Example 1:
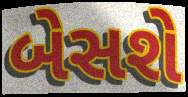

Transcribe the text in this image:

બેસશે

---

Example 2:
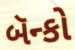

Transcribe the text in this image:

બૅન્કો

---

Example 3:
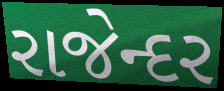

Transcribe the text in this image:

રાજેન્દર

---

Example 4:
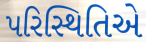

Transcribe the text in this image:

પરિસ્થિતિએ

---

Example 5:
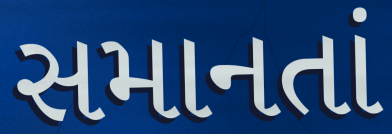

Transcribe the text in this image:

સમાનતાં